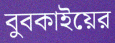
বুবকাইয়ের